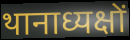
थानाध्यक्षों